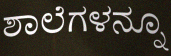
ಶಾಲೆಗಳನ್ನೂ